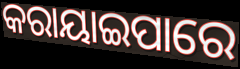
କରାୟାଇପାରେ